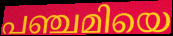
പഞ്ചമിയെ